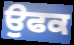
ਉਫਕ